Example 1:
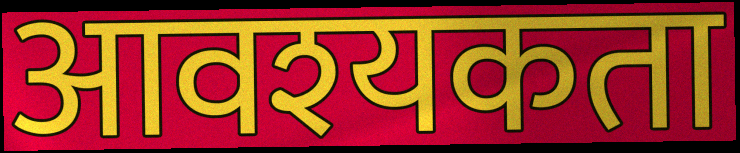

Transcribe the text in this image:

आवश्‍यकता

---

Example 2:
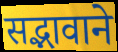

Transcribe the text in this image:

सद्भावाने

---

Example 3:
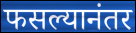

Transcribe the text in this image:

फसल्यानंतर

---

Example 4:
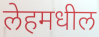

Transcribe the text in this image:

लेहमधील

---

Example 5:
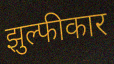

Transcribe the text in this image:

झुल्फीकार